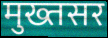
मुख्तसर